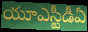
యూఎస్టీడీఏ